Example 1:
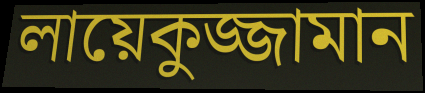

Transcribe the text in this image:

লায়েকুজ্জামান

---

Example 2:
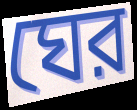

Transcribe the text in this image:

ঘের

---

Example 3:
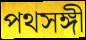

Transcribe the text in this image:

পথসঙ্গী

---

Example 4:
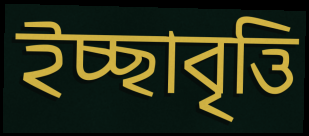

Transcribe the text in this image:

ইচ্ছাবৃত্তি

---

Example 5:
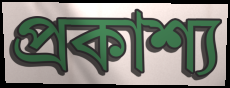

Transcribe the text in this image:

প্রকাশ্য